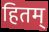
हितम्